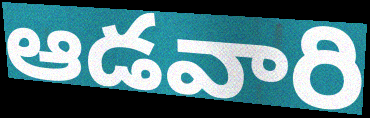
ఆడవారి